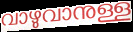
വാഴുവാനുള്ള